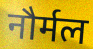
नौर्मल